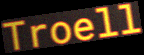
Troell